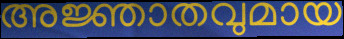
അജ്ഞാതവുമായ